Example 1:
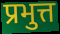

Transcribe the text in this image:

प्रभुत्त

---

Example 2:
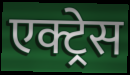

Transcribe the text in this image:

एक्ट्र्रेस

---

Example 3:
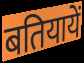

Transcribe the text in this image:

बतियायें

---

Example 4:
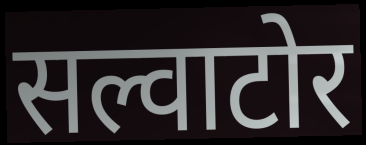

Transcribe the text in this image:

सल्वाटोर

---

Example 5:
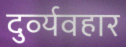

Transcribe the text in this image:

दुर्व्‍यवहार